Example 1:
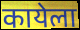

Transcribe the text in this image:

कायेला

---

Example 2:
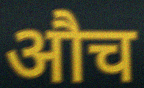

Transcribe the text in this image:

औच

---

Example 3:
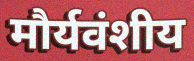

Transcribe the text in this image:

मौर्यवंशीय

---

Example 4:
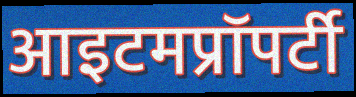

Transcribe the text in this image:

आइटमप्रॉपर्टी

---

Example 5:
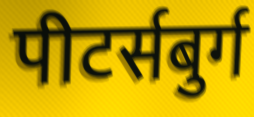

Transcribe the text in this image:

पीटर्सबुर्ग